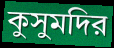
কুসুমদির